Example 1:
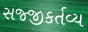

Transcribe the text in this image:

સજ્જીકર્તવ્ય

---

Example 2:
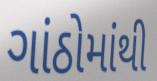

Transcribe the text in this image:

ગાંઠોમાંથી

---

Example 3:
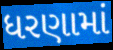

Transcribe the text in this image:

ધરણામાં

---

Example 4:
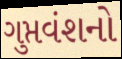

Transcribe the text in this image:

ગુપ્તવંશનો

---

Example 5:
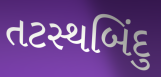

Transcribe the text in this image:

તટસ્થબિંદુ